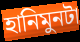
হানিমুনটা